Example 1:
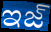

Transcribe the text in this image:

ఇజ్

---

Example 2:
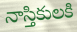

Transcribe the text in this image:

నాస్తికులకి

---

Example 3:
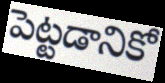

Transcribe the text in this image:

పెట్టడానికో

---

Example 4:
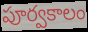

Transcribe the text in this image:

పూర్వకాలం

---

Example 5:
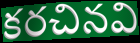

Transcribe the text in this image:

కరచినవి